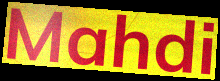
Mahdi